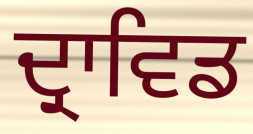
ਦ੍ਰਾਵਿਡ